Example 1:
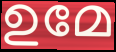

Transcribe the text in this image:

ഉമേ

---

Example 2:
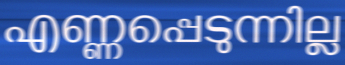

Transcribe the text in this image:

എണ്ണപ്പെടുന്നില്ല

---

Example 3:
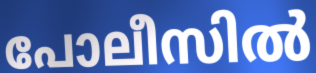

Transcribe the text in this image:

പോലീസിൽ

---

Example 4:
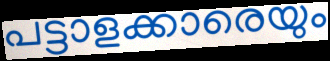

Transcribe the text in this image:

പട്ടാളക്കാരെയും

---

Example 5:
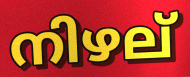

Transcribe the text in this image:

നിഴല്